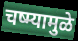
चष्म्यामुळे